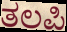
ತಲಪಿ